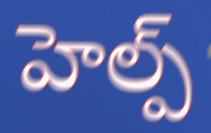
హెల్ప్